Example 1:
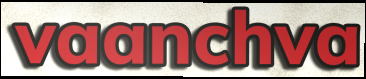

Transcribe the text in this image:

vaanchva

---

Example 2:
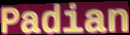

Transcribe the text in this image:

Padian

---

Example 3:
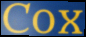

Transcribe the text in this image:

Cox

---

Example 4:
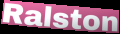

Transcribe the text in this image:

Ralston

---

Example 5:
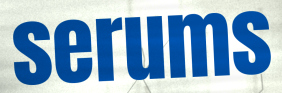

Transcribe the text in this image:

serums